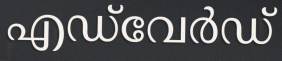
എഡ്‌വേർഡ്